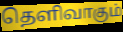
தெளிவாகும்